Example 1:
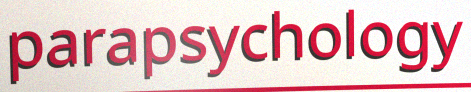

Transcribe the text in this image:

parapsychology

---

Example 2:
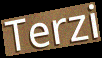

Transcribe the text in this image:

Terzi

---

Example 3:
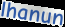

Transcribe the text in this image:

lhanun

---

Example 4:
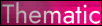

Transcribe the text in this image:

Thematic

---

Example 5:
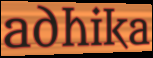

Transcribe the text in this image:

adhika